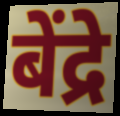
बेंद्रे